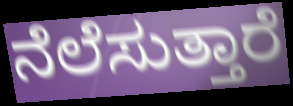
ನೆಲೆಸುತ್ತಾರೆ